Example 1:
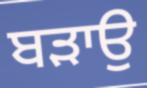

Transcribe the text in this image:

ਬਡ਼ਾਉ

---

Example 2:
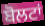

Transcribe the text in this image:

ਬੋਲਟਾਂ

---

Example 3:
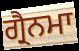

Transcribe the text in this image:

ਗ੍ਰੈਨਮਾ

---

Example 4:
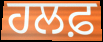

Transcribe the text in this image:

ਹਲਫ਼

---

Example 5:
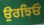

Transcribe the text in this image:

ਉਰਝਿਓ